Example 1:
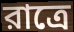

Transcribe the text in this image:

রাত্রে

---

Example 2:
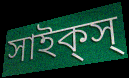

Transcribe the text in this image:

সাইক্‌স্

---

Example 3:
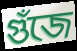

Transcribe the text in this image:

গুঁজে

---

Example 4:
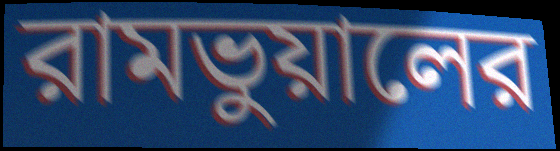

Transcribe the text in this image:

রামভুয়ালের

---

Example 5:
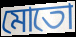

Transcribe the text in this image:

মোতো